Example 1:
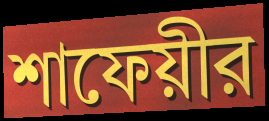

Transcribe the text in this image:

শাফেয়ীর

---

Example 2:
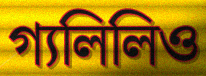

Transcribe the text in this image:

গ্যলিলিও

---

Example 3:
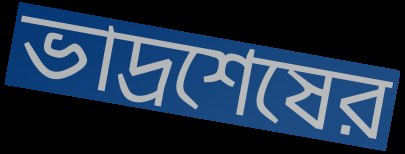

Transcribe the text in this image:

ভাদ্রশেষের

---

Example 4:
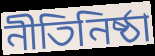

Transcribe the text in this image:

নীতিনিষ্ঠা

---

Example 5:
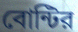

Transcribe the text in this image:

বোন্টির